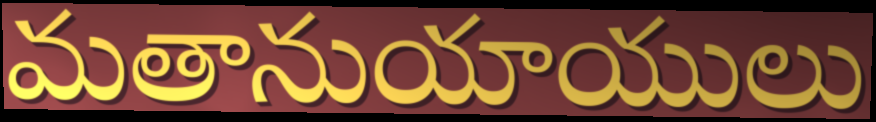
మతానుయాయులు